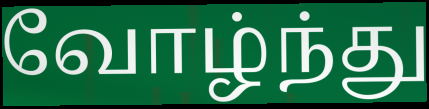
வோழ்ந்து